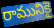
రామునికై